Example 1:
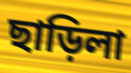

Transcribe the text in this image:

ছাড়িলা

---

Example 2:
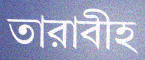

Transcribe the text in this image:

তারাবীহ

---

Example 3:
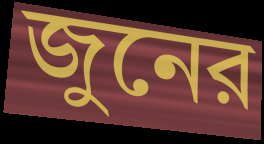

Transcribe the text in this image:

জুনের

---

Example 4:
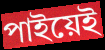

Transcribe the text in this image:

পাইয়েই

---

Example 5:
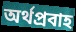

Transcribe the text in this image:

অর্থপ্রবাহ